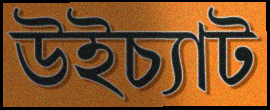
উইচ্যাট